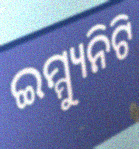
ଇମ୍ମ୍ୟୁନିଟି